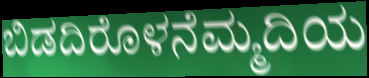
ಬಿಡದಿರೊಳನೆಮ್ಮದಿಯ